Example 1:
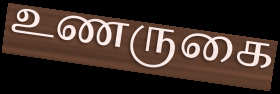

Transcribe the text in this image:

உணருகை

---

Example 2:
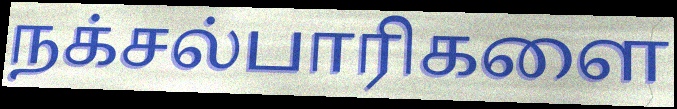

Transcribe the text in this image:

நக்சல்பாரிகளை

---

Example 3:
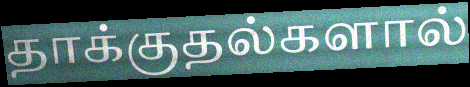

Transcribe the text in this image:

தாக்குதல்களால்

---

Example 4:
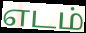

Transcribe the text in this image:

எடம்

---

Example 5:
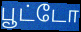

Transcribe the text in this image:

பூட்டோ